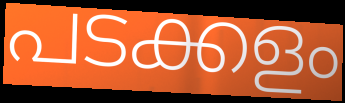
പടക്കളം